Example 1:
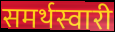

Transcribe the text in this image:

समर्थस्वारी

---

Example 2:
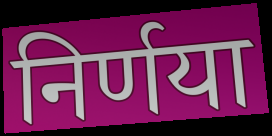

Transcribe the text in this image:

निर्णया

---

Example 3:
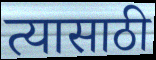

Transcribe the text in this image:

त्यासाठी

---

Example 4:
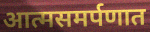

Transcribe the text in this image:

आत्मसमर्पणात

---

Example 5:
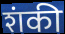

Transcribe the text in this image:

शंकी